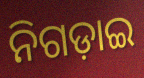
ନିଗଡ଼ାଇ